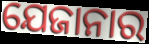
ଯେଜାନାର